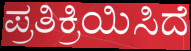
ಪ್ರತಿಕ್ರಿಯಿಸಿದೆ